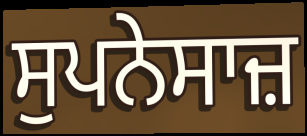
ਸੁਪਨੇਸਾਜ਼